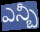
ఎన్బీ